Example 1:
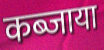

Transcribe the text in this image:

कब्जाया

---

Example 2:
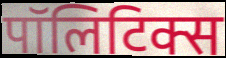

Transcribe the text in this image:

पॉलिटिक्स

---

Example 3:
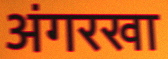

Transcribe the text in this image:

अंगरखा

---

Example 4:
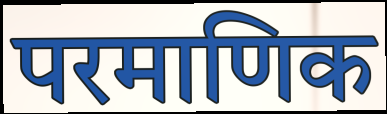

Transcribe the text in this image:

परमाणिक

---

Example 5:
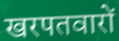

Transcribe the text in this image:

खरपतवारों